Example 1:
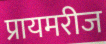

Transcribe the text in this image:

प्रायमरीज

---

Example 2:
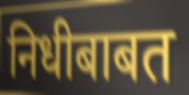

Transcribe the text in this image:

निधीबाबत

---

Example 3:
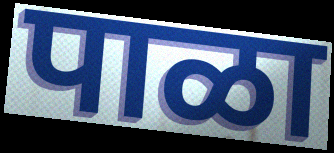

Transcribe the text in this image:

पाळा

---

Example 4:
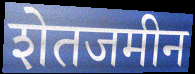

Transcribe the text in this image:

शेतजमीन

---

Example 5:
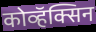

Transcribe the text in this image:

कोव्हॅक्सिन